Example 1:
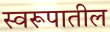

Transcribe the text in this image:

स्वरूपातील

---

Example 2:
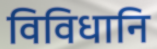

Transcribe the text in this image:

विविधानि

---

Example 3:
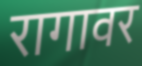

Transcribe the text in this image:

रागावर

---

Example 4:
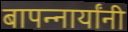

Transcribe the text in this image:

बापन्नार्यांनी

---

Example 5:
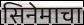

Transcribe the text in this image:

सिनेमाचा